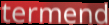
termend